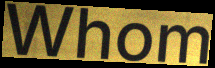
Whom